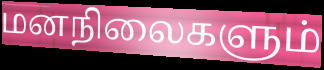
மனநிலைகளும்